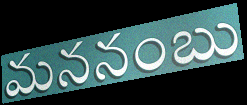
మననంబు